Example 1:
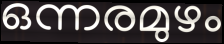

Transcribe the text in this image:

ഒന്നരമുഴം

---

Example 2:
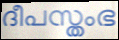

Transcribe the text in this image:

ദീപസ്തംഭ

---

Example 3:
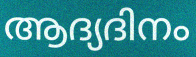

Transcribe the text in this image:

ആദ്യദിനം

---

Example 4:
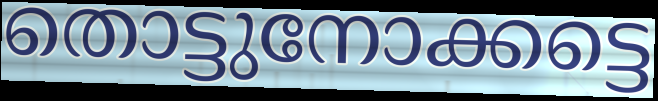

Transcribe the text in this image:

തൊട്ടുനോക്കട്ടെ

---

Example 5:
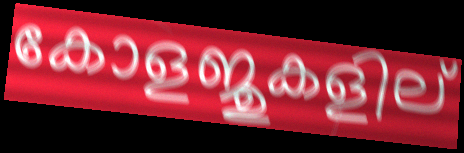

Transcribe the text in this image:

കോളജുകളില്